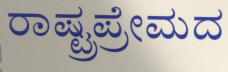
ರಾಷ್ಟ್ರಪ್ರೇಮದ